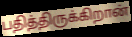
பதித்திருக்கிறான்